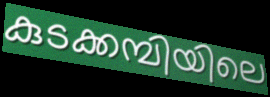
കുടക്കമ്പിയിലെ